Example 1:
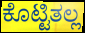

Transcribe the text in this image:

ಕೊಟ್ಟಿತಲ್ಲ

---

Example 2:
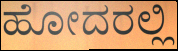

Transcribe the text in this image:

ಹೋದರಲ್ಲಿ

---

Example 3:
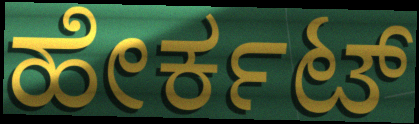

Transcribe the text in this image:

ಹೇರ್ಕಟ್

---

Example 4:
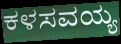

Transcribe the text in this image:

ಕಳಸವಯ್ಯ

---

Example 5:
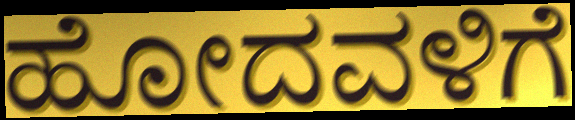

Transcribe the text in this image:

ಹೋದವಳಿಗೆ